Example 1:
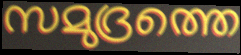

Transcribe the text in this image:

സമുദ്രത്തെ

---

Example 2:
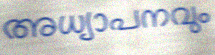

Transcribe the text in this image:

അധ്യാപനവും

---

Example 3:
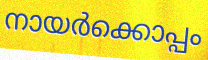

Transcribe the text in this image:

നായർക്കൊപ്പം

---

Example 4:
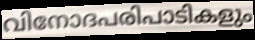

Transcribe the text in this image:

വിനോദപരിപാടികളും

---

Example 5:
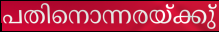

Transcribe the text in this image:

പതിനൊന്നരയ്ക്കു്